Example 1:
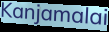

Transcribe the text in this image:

Kanjamalai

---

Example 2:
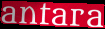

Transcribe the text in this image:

antara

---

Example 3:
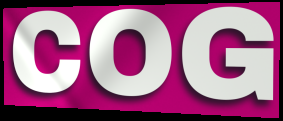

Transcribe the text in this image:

COG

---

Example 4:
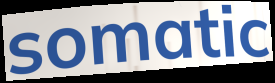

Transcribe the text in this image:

somatic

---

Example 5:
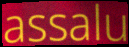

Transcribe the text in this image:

assalu